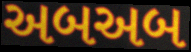
અબઅબ